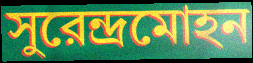
সুরেন্দ্রমোহন